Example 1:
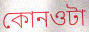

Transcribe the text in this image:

কোনওটা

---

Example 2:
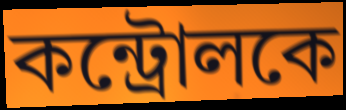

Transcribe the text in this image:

কন্ট্রোলকে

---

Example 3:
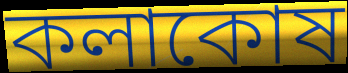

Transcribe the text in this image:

কলাকোষ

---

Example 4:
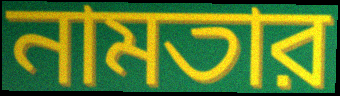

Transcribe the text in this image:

নামতার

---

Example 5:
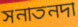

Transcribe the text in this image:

সনাতনদা